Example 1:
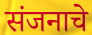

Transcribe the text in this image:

संजनाचे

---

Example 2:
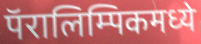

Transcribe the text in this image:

पॅरालिम्पिकमध्ये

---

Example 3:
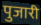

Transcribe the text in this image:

पुजारी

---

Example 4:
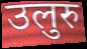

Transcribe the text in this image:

उलुरु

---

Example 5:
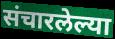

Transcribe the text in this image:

संचारलेल्या